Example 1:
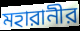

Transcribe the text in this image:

মহারানীর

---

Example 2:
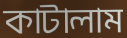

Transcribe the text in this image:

কাটালাম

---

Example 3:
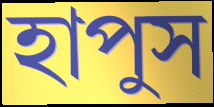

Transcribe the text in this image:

হাপুস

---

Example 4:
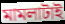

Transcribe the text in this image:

মামলাটাই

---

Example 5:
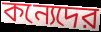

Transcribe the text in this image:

কন্যেদের